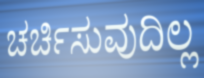
ಚರ್ಚಿಸುವುದಿಲ್ಲ